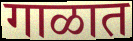
गाळात